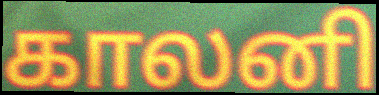
காலனி